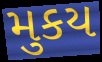
મુકય